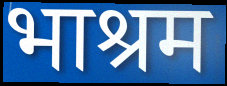
भाश्रम